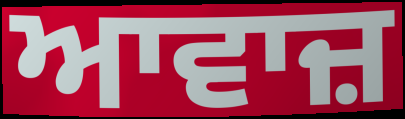
ਆਵਾਜ਼